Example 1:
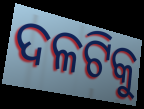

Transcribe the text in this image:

ଦଳଟିକୁ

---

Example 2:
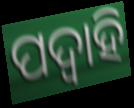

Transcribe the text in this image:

ପଦ୍ଵାହି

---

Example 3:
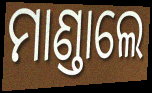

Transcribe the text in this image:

ମାଣ୍ଡାଲେ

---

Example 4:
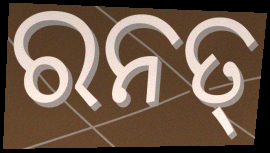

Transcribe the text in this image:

ରନତ୍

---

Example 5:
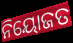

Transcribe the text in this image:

ନିୟୋଜତ